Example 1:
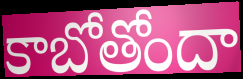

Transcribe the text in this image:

కాబోతోందా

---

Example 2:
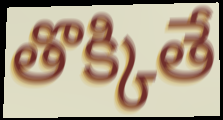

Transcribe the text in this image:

తొక్కితే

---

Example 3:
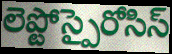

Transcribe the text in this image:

లెప్టోస్పైరోసిస్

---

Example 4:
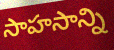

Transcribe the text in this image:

సాహసాన్ని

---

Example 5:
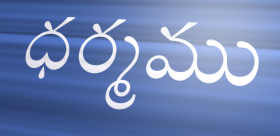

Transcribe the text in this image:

ధర్మము